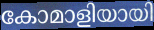
കോമാളിയായി